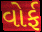
વોર્ફ